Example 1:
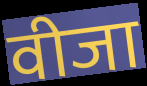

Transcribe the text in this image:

वीजा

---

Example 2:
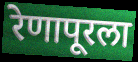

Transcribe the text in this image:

रेणापूरला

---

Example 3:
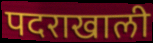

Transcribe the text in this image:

पदराखाली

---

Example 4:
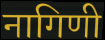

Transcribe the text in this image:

नागिणी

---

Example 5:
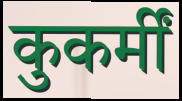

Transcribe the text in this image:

कुकर्मीं